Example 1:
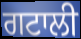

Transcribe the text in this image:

ਗਟਾਲੀ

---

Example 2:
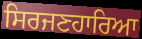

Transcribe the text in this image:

ਸਿਰਜਣਹਾਰਿਆ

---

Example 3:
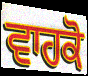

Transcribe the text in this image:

ਵਾਹਕੋ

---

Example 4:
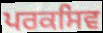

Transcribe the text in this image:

ਪਰਕਸਿਵ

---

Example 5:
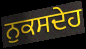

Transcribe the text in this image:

ਨੁਕਸਦੇਹ